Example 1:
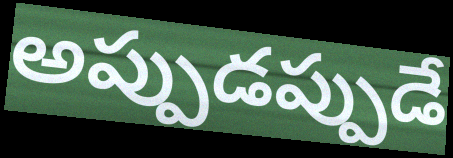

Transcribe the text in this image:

అప్పుడప్పుడే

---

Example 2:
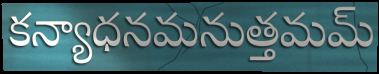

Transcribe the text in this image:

కన్యాధనమనుత్తమమ్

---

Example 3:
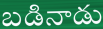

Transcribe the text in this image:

బడినాడు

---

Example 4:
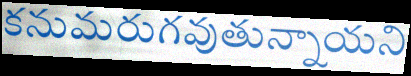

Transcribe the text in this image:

కనుమరుగవుతున్నాయని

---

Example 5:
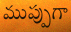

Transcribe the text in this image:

ముప్పుగా